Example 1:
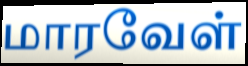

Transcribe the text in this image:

மாரவேள்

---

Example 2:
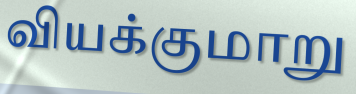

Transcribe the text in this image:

வியக்குமாறு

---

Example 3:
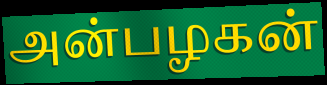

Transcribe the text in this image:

அன்பழகன்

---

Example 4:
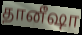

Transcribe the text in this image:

தானீஷா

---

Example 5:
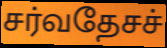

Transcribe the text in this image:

சர்வதேசச்